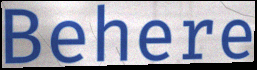
Behere